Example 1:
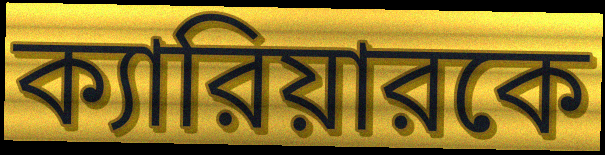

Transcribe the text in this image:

ক্যারিয়ারকে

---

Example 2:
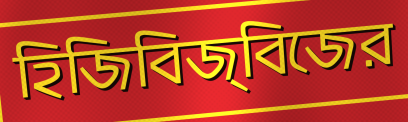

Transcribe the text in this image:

হিজিবিজ্‌বিজের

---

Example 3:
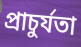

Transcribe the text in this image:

প্রাচুর্যতা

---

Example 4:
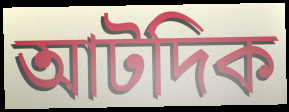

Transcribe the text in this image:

আটদিক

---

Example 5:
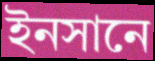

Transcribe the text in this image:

ইনসানে